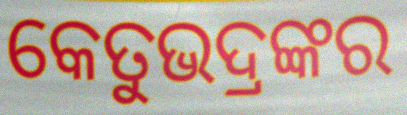
କେତୁଭଦ୍ରଙ୍କର